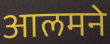
आलमने